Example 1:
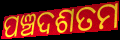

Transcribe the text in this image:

ପଞ୍ଚଦଶତମ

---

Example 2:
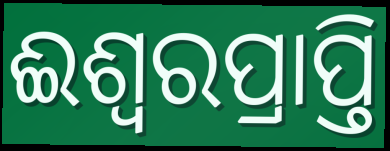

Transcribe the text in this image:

ଈଶ୍ଵରପ୍ରାପ୍ତି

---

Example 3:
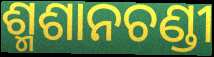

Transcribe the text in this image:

ଶ୍ମଶାନଚଣ୍ଡୀ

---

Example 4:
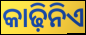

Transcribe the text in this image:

କାଢ଼ିନିଏ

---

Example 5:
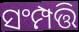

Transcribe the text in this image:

ସଂମ୍ପତ୍ତି